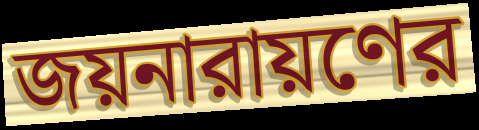
জয়নারায়ণের